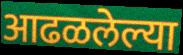
आढळलेल्या